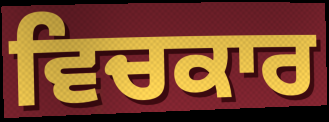
ਵਿਚਕਾਰ